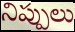
నిప్పులు